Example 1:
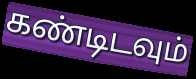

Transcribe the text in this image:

கண்டிடவும்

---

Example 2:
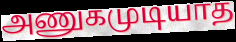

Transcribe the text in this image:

அணுகமுடியாத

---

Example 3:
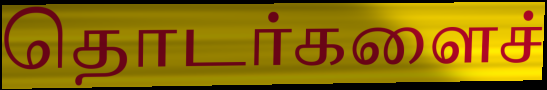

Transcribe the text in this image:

தொடர்களைச்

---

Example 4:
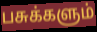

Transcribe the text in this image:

பசுக்களும்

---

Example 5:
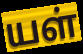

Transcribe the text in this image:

யள்